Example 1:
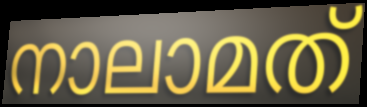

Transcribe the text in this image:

നാലാമത്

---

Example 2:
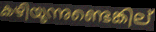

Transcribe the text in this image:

കഴിയുന്നുണ്ടെങ്കില്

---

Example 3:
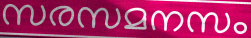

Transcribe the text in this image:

സരസമനസം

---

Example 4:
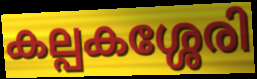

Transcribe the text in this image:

കല്പകശ്ശേരി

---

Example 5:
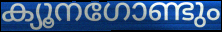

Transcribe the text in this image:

ക്യൂനഗോണ്ടും